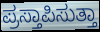
ಪ್ರಸ್ತಾಪಿಸುತ್ತಾ